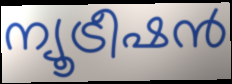
ന്യൂട്രീഷൻ